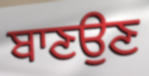
ਬਾਣਉਣ